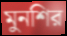
মুনশির